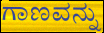
ಗಾಣವನ್ನು